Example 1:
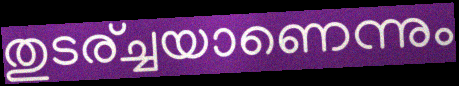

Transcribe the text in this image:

തുടര്ച്ചയാണെന്നും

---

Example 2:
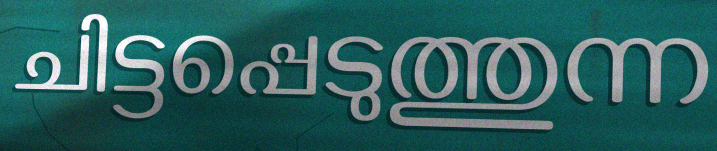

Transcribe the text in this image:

ചിട്ടപ്പെടുത്തുന്ന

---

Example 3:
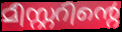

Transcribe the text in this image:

മീസ്റ്ററിന്റെ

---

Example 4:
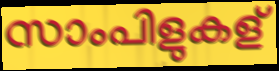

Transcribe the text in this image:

സാംപിളുകള്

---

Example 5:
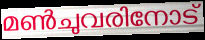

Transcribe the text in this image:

മൺചുവരിനോട്